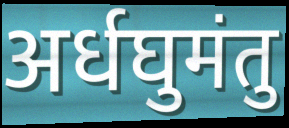
अर्धघुमंतु